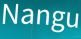
Nangu